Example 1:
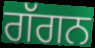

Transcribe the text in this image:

ਗੱਗਨ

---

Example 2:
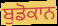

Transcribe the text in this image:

ਬੁਡੋਕਾਨ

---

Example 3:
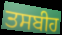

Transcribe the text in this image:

ਤਸਬੀਹ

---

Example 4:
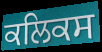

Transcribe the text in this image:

ਕਲਿਕਸ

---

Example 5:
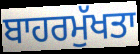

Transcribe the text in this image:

ਬਾਹਰਮੁੱਖਤਾ